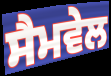
ਸੈਮਵੇਲ